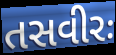
તસવીરઃ